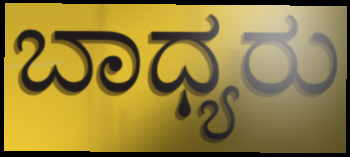
ಬಾಧ್ಯರು